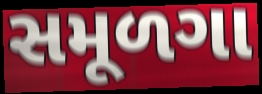
સમૂળગા